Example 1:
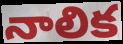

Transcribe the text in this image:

నాలిక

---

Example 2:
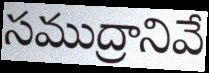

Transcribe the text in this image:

సముద్రానివే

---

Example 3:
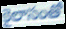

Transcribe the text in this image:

కైలాసంతో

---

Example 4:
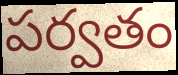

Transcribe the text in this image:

పర్వతం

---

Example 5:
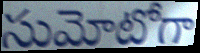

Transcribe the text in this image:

సుమోటోగా